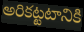
అరికట్టటానికి